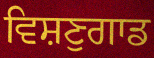
ਵਿਸ਼ਣੁਗਾਡ